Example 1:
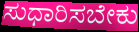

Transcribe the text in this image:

ಸುಧಾರಿಸಬೇಕು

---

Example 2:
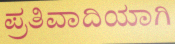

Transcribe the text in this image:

ಪ್ರತಿವಾದಿಯಾಗಿ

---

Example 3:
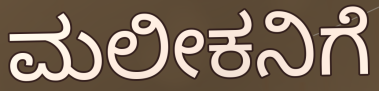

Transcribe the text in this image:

ಮಲೀಕನಿಗೆ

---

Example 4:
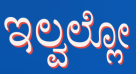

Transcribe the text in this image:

ಇಲ್ವಲ್ಲೋ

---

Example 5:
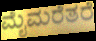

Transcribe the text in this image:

ಮೈಮರೆತರೆ